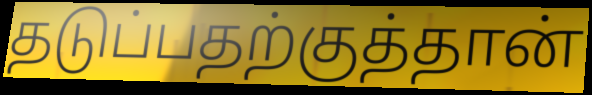
தடுப்பதற்குத்தான்